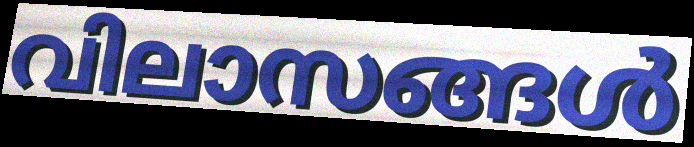
വിലാസങ്ങൾ